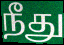
நீது